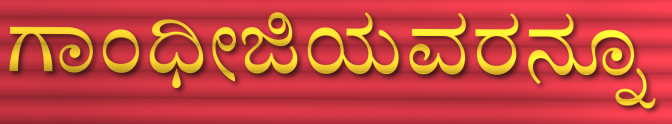
ಗಾಂಧೀಜಿಯವರನ್ನೂ